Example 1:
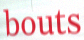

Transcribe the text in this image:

bouts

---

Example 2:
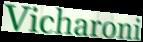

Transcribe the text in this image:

Vicharoni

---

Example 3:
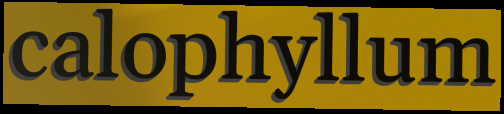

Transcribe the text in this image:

calophyllum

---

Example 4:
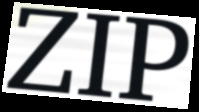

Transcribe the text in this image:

ZIP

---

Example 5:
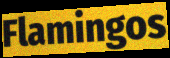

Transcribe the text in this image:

Flamingos